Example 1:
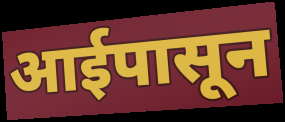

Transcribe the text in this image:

आईपासून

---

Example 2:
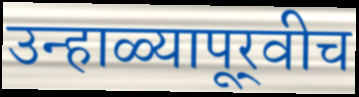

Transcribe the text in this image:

उन्हाळ्यापूर्वीच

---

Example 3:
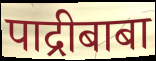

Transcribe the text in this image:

पाद्रीबाबा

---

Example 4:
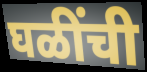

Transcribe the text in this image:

घळींची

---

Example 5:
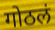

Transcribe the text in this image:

गोठलं